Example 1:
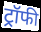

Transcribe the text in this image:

ट्रॉफी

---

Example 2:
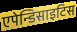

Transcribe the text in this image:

एपेन्डिसाइटिस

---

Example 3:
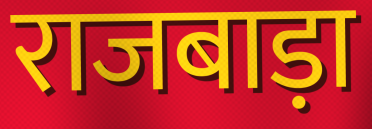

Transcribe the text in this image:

राजबाड़ा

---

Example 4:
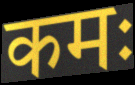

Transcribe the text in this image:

कमः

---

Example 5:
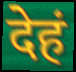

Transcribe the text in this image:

देहं